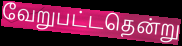
வேறுபட்டதென்று